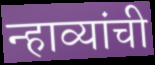
न्हाव्यांची